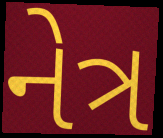
નેત્ર